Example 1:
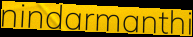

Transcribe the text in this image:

nindarmanthi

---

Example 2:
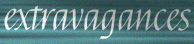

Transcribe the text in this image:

extravagances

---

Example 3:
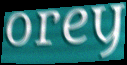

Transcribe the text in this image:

orey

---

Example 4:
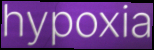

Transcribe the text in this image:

hypoxia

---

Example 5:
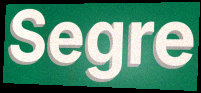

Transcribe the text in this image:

Segre